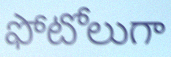
ఫోటోలుగా